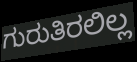
ಗುರುತಿರಲಿಲ್ಲ